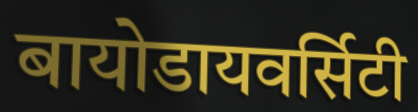
बायोडायवर्सिटी